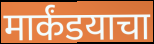
मार्कंडयाचा